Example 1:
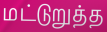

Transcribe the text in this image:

மட்டுறுத்த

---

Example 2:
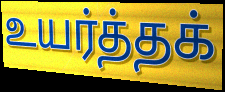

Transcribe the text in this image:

உயர்த்தக்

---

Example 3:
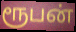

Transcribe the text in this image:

ரூபன்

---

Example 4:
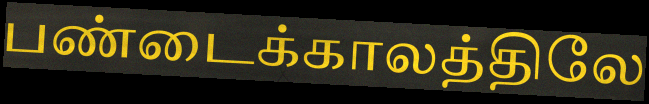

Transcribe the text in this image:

பண்டைக்காலத்திலே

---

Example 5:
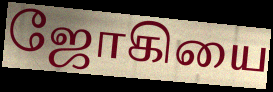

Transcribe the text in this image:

ஜோகியை